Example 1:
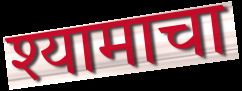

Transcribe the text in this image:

श्यामाचा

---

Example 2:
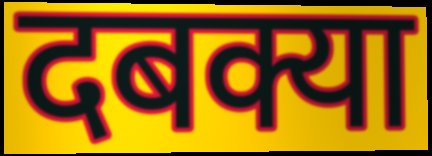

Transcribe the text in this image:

दबक्या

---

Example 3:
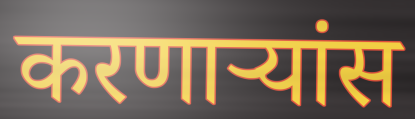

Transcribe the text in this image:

करणाऱ्यांस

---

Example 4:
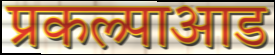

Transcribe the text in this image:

प्रकल्पाआड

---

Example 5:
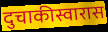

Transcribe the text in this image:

दुचाकीस्वारास